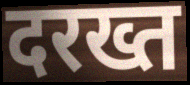
दरख्त